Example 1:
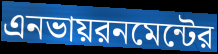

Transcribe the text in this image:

এনভায়রনমেন্টের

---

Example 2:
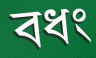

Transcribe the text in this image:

বধং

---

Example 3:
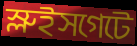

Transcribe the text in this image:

স্লুইসগেটে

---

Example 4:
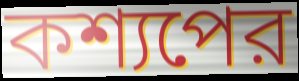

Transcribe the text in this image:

কশ্যপের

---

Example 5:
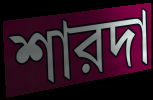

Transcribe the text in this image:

শারদা